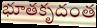
భూతకృదంత